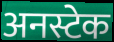
अनस्टेक